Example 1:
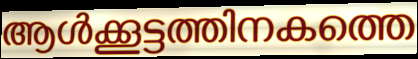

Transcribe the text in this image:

ആൾക്കൂട്ടത്തിനകത്തെ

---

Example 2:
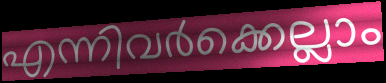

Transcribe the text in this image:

എന്നിവർക്കെല്ലാം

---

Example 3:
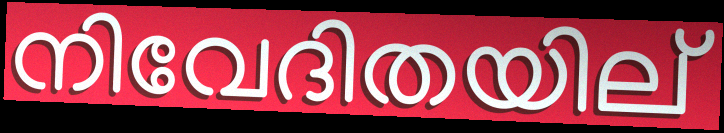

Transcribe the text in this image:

നിവേദിതയില്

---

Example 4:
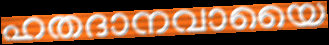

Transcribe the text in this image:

ഹതദാനവായൈ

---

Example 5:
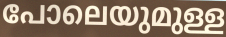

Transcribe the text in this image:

പോലെയുമുള്ള